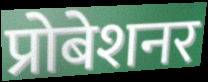
प्रोबेशनर